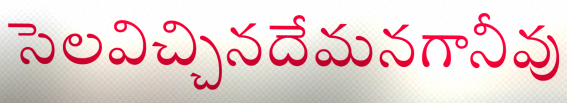
సెలవిచ్చినదేమనగానీవు